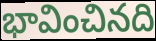
భావించినది